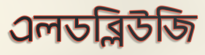
এলডব্লিউজি